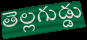
తెల్లగుడ్డు